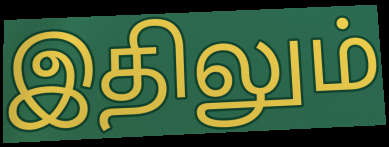
இதிலும்